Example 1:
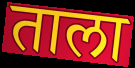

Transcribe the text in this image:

ताला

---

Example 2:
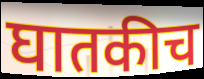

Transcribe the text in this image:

घातकीच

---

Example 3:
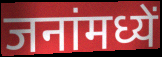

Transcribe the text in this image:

जनांमध्यें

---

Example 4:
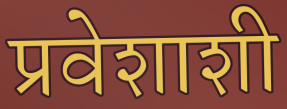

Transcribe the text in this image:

प्रवेशाशी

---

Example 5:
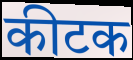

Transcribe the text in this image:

कीटक